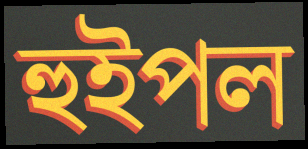
হুইপল